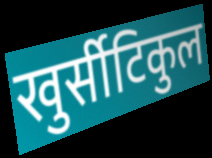
खुर्सीटिकुल